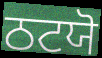
ਠਟਯੋ